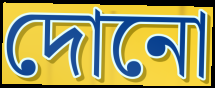
দোনো